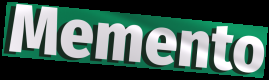
Memento